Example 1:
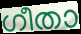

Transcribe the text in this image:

ഗീതാ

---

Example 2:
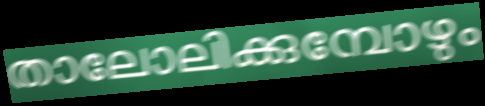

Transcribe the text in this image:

താലോലിക്കുമ്പോഴും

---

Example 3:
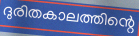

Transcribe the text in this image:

ദുരിതകാലത്തിന്റെ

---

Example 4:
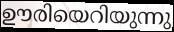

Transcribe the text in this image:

ഊരിയെറിയുന്നു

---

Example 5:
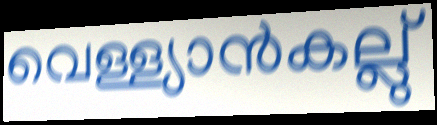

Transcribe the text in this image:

വെള്ള്യാൻകല്ലു്